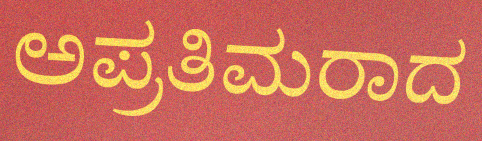
ಅಪ್ರತಿಮರಾದ